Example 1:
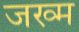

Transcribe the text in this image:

जख्म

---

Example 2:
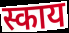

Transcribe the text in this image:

स्काय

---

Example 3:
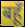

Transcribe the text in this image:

बहूँ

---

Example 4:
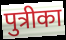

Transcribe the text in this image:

पुत्रीका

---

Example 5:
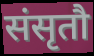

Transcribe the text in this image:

संसृतौ